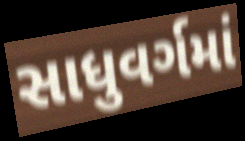
સાધુવર્ગમાં